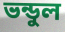
ভন্ডুল